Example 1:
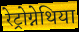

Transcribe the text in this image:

रेट्रोग्नेथिया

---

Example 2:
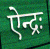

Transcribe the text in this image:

ऐन्द्रः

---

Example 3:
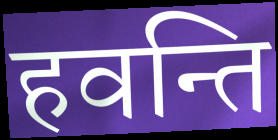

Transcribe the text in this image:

हवन्ति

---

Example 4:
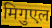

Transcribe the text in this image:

मिगुएल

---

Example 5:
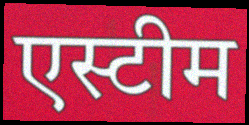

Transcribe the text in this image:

एस्टीम